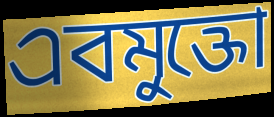
এবমুক্তো